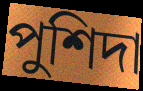
পুশিদা